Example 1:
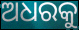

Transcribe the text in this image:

ଅଧରକୁ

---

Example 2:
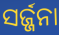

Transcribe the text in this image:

ସର୍ଜ୍ଜନା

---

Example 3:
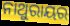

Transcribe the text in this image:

ନାଥୁରାୟର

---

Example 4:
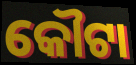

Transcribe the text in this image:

କୌଟା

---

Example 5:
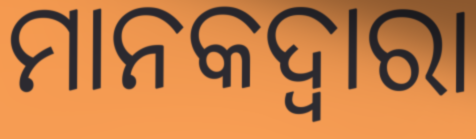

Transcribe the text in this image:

ମାନକଦ୍ୱାରା